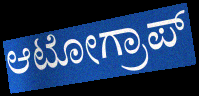
ಆಟೋಗ್ರಾಪ್